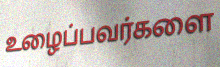
உழைப்பவர்களை